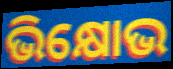
ଭିକ୍ଷୋଭ